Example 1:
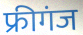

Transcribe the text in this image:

फ्रीगंज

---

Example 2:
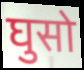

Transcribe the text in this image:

घुसो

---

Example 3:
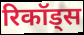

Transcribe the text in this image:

रिकॉड्स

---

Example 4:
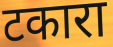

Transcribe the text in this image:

टकारा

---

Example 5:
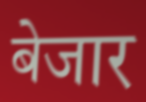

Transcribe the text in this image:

बेजार